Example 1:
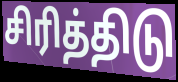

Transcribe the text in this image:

சிரித்திடு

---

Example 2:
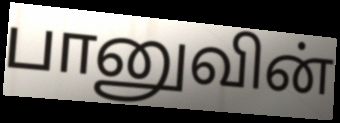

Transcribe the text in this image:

பானுவின்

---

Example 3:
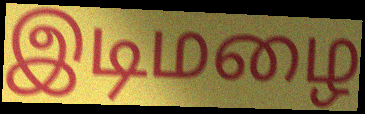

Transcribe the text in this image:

இடிமழை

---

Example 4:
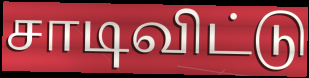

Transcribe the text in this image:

சாடிவிட்டு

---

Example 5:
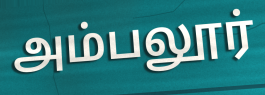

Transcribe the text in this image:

அம்பலூர்